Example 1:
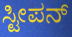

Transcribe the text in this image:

ಸ್ಟೀಪನ್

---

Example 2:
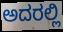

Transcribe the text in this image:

ಅದರಲ್ಲಿ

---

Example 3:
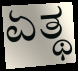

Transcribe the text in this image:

ಏತ್ಥ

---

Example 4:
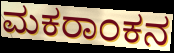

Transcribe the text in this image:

ಮಕರಾಂಕನ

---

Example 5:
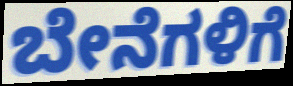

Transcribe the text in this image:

ಬೇನೆಗಳಿಗೆ